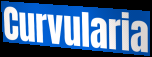
Curvularia